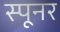
स्पूनर